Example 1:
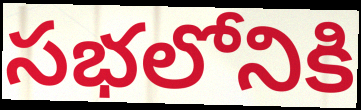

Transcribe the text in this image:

సభలోనికి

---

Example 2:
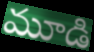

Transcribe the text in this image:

మూడి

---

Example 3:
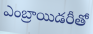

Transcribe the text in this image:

ఎంబ్రాయిడరీతో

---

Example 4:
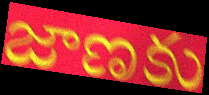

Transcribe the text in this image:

జాణకు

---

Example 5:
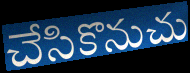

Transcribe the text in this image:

చేసికొనుచు